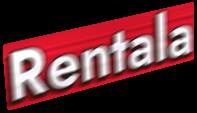
Rentala